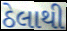
ઠેલાથી